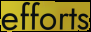
efforts